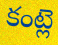
కంట్లె